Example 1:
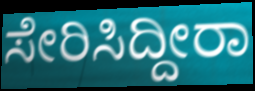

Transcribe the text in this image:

ಸೇರಿಸಿದ್ದೀರಾ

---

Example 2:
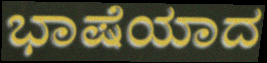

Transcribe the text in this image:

ಭಾಷೆಯಾದ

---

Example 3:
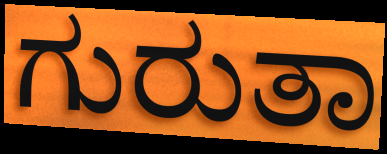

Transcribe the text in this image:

ಗುರುತಾ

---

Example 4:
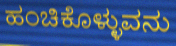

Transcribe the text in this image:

ಹಂಚಿಕೊಳ್ಳುವನು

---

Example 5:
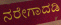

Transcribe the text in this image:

ನರೇಗಾದಡಿ